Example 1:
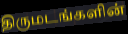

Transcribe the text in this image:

திருமடங்களின்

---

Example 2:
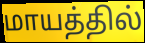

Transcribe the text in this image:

மாயத்தில்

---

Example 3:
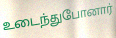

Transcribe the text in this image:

உடைந்துபோனார்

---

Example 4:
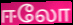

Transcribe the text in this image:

ஈலோ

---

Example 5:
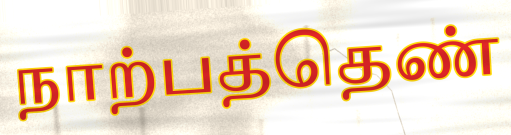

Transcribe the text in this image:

நாற்பத்தெண்